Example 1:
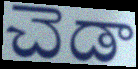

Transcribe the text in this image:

చెడా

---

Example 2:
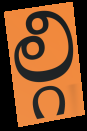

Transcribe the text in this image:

ల్గి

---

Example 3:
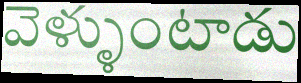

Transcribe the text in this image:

వెళ్ళుంటాడు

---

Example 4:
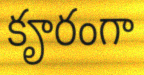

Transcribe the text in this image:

కౄరంగా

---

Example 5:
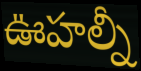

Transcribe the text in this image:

ఊహల్నీ